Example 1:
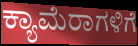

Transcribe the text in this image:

ಕ್ಯಾಮೆರಾಗಳಿಗೆ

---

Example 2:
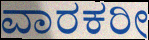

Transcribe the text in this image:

ವಾರಕರೀ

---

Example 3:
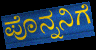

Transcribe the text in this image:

ಪೊನ್ನನಿಗೆ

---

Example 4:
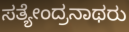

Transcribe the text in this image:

ಸತ್ಯೇಂದ್ರನಾಥರು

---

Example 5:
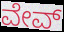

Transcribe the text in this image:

ವೇವ್